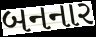
બનનાર